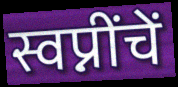
स्वप्नींचें